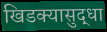
खिडक्यासुद्धा